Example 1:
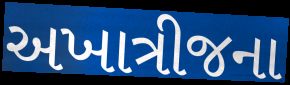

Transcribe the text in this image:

અખાત્રીજના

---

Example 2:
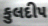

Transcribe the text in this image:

કુલદીપ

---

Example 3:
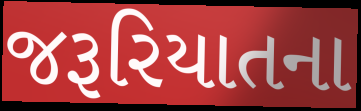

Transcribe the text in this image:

જરૂરિયાતના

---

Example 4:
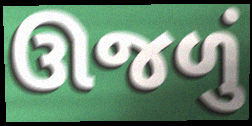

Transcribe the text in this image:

ઊજળું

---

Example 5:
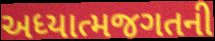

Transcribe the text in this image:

અધ્યાત્મજગતની